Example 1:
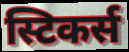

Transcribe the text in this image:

स्टिकर्स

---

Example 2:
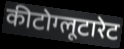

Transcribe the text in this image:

कीटोग्लूटारेट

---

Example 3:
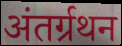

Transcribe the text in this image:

अंतर्ग्रथन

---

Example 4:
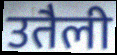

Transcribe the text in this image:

उतैली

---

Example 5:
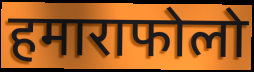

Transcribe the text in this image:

हमाराफोलो